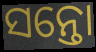
ସନ୍ତୋ